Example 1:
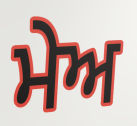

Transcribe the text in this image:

ਮੇਅ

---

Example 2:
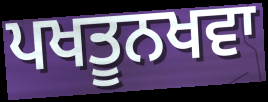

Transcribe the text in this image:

ਪਖਤੂਨਖਵਾ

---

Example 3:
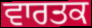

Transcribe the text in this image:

ਵਾਰਤਕ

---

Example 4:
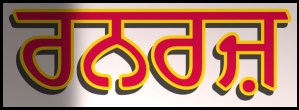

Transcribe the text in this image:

ਰਨਰਜ਼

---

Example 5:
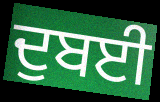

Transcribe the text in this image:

ਦੁਬਈ